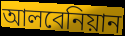
আলবেনিয়ান